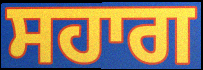
ਸਹਾਗ